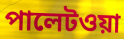
পালেটওয়া